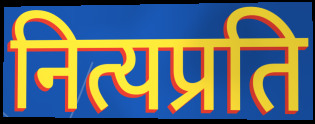
नित्यप्रति